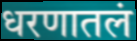
धरणातलं